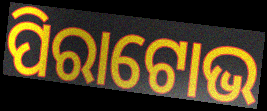
ପିରାଟୋଭ